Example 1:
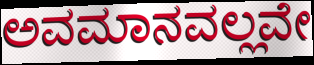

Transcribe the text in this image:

ಅವಮಾನವಲ್ಲವೇ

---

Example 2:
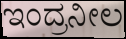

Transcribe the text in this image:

ಇಂದ್ರನೀಲ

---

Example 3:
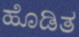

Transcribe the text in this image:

ಹೊಡಿತ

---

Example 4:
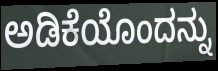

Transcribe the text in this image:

ಅಡಿಕೆಯೊಂದನ್ನು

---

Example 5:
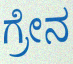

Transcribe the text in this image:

ಗ್ರೇನ